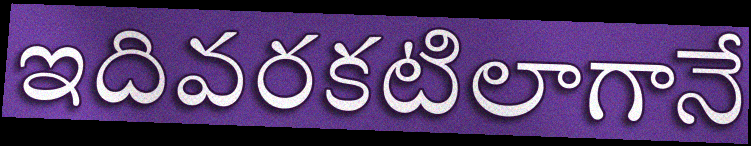
ఇదివరకటిలాగానే